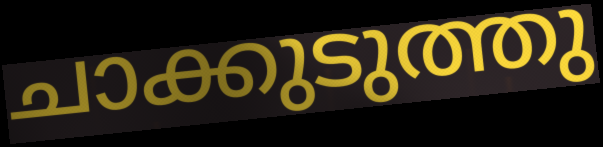
ചാക്കുടുത്തു